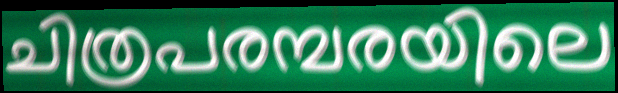
ചിത്രപരമ്പരയിലെ